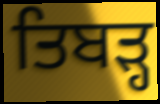
ਤਿਬੜ੍ਹ